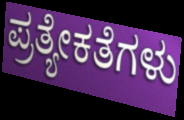
ಪ್ರತ್ಯೇಕತೆಗಳು